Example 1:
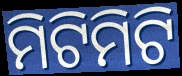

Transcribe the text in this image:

ମିଟିମିଟି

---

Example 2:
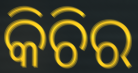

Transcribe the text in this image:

କିଚିର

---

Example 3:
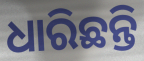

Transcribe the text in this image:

ଧାରିଛନ୍ତି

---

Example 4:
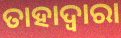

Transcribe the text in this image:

ତାହାଦ୍ୱାରା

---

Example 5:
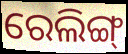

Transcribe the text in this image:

ରେଲିଙ୍ଗ୍